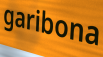
garibona